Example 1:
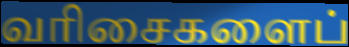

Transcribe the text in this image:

வரிசைகளைப்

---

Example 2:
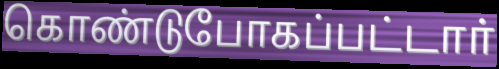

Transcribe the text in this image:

கொண்டுபோகப்பட்டார்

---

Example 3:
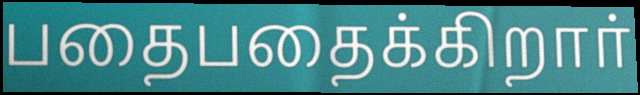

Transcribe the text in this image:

பதைபதைக்கிறார்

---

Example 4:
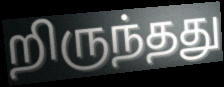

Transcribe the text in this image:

றிருந்தது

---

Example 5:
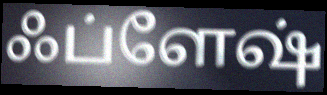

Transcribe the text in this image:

ஃப்ளேஷ்